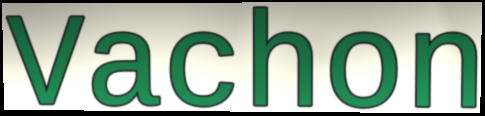
Vachon